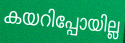
കയറിപ്പോയില്ല